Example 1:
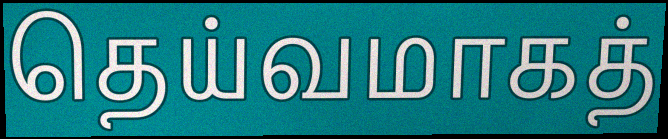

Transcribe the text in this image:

தெய்வமாகத்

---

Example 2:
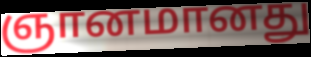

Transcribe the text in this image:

ஞானமானது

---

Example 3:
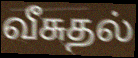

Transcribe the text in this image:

வீசுதல்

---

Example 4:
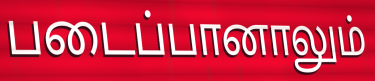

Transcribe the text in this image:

படைப்பானாலும்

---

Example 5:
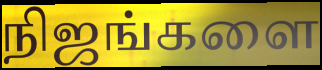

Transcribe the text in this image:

நிஜங்களை